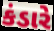
કંડારે